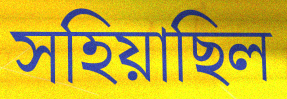
সহিয়াছিল